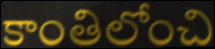
కాంతిలోంచి